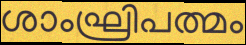
ശാംഘ്രിപത്മം